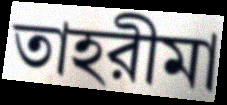
তাহরীমা